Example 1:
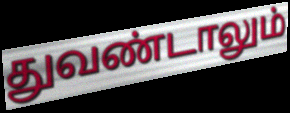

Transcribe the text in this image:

துவண்டாலும்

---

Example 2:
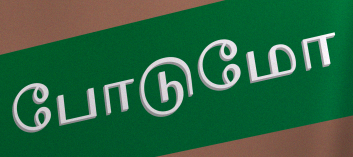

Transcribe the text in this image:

போடுமோ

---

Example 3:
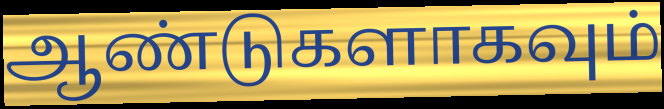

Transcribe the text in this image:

ஆண்டுகளாகவும்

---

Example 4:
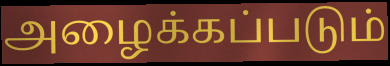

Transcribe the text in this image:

அழைக்கப்படும்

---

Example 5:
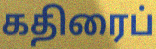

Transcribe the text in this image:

கதிரைப்